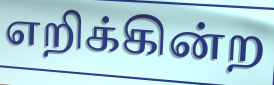
எறிக்கின்ற